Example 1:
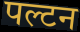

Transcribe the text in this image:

पल्टन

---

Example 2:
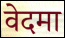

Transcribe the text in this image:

वेदमा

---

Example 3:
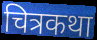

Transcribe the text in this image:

चित्रकथा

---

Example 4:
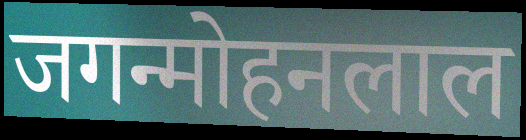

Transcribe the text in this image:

जगन्मोहनलाल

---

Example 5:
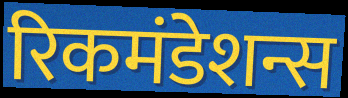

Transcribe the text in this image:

रिकमंडेशन्स